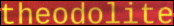
theodolite